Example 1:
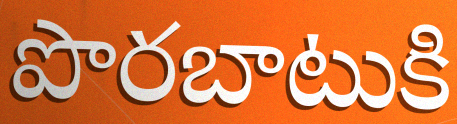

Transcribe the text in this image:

పొరబాటుకి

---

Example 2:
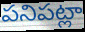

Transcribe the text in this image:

పనిపట్లా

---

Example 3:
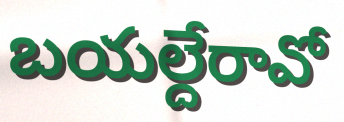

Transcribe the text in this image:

బయల్దేరావో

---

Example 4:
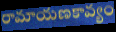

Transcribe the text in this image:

రామాయణకావ్యం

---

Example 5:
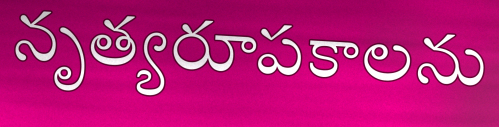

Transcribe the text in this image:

నృత్యరూపకాలను